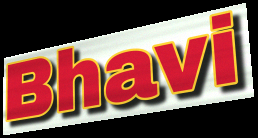
Bhavi